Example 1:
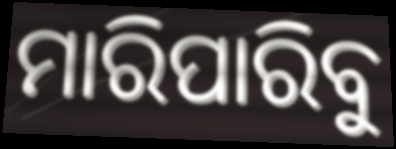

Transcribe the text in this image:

ମାରିପାରିବୁ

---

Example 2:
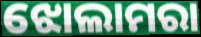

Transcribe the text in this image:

ଝୋଲାମରା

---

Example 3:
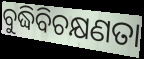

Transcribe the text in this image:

ବୁଦ୍ଧିବିଚକ୍ଷଣତା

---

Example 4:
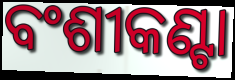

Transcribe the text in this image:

ବଂଶୀକଣ୍ଟା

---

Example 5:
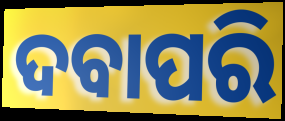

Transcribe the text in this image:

ଦବାପରି